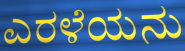
ಎರಳೆಯನು